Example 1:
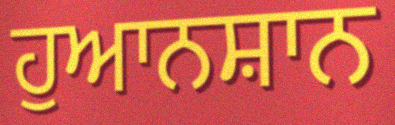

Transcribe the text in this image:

ਹੁਆਨਸ਼ਾਨ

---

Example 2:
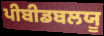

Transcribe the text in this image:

ਪੀਬੀਡਬਲਯੂ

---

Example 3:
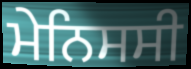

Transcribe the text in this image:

ਮੇਨਿਸਸੀ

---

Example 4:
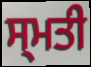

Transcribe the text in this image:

ਸ੍ਮਤੀ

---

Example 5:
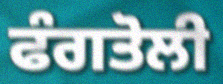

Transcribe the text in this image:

ਫੰਗਤੋਲੀ